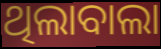
ଥିଲାବାଲା